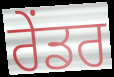
ਰੇੰਡਰ